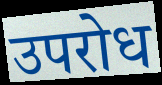
उपरोध